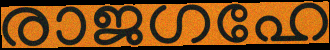
രാജഗഹേ